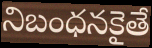
నిబంధనకైతే